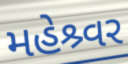
મહેશ્ર્વર